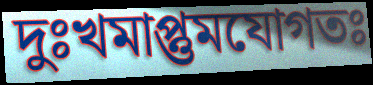
দুঃখমাপ্তুমযোগতঃ